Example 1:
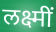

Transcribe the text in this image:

लक्ष्मीं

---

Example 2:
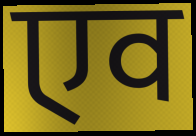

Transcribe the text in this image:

एव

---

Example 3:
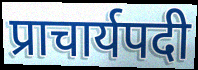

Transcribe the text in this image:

प्राचार्यपदी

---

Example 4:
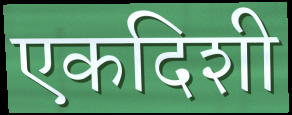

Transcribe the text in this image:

एकदिशी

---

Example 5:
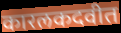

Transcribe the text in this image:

कारलकदवीत